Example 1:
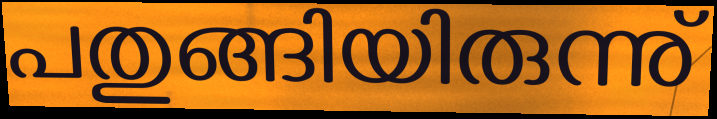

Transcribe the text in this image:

പതുങ്ങിയിരുന്നു്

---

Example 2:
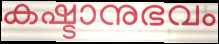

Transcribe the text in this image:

കഷ്ടാനുഭവം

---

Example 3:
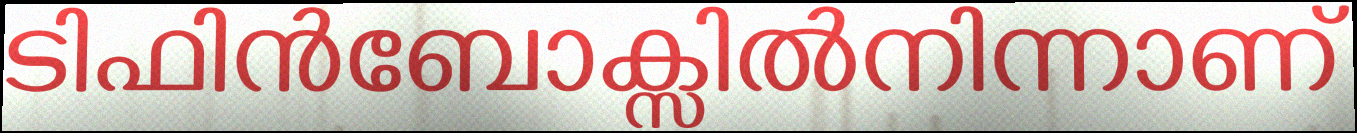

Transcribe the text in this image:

ടിഫിൻബോക്സിൽനിന്നാണ്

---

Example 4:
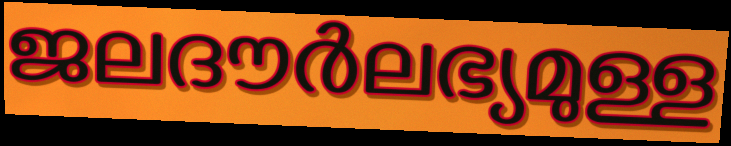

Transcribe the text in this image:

ജലദൗർലഭ്യമുള്ള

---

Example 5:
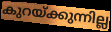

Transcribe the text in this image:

കുറയ്ക്കുന്നില്ല